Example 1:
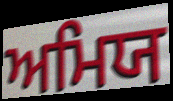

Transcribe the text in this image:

ਅਮਿਯ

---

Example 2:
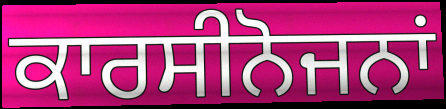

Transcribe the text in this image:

ਕਾਰਸੀਨੋਜਨਾਂ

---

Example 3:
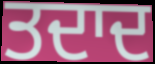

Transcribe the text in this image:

ਤਦਾਦ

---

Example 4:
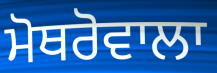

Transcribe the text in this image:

ਮੋਥਰੋਵਾਲਾ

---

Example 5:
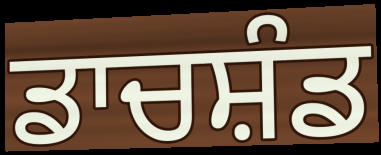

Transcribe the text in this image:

ਡਾਚਸ਼ੰਡ